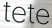
tete